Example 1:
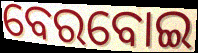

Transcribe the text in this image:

ବେରବୋଇ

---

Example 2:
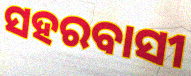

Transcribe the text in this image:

ସହରବାସୀ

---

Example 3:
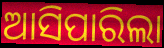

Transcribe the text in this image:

ଆସିପାରିଲା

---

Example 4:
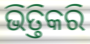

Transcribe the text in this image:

ଭିତ୍ତିକରି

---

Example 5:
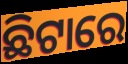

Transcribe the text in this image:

ଛିଟାରେ